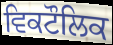
ਵਿਕਟੌਲਿਕ